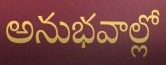
అనుభవాల్లో